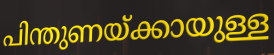
പിന്തുണയ്ക്കായുള്ള